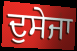
ਦੁਸੇਜਾ